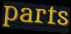
parts